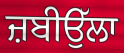
ਜ਼ਬੀਉੱਲਾ